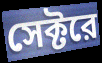
সেক্টরে